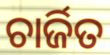
ଚାର୍ଜିତ